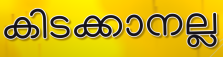
കിടക്കാനല്ല